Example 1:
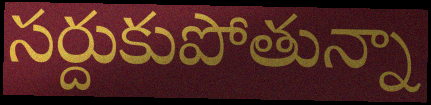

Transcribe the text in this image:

సర్దుకుపోతున్నా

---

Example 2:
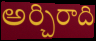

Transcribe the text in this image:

అర్చిరాది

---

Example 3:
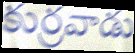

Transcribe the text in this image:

కుర్రవాడు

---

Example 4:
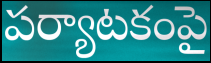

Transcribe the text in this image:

పర్యాటకంపై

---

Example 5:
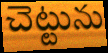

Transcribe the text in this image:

చెట్టును